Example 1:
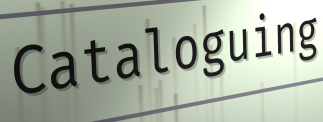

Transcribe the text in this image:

Cataloguing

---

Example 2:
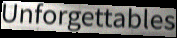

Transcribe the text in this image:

Unforgettables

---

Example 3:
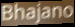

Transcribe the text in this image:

Bhajano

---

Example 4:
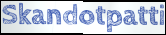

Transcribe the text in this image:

Skandotpatti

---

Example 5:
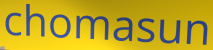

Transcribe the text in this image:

chomasun